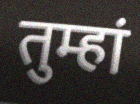
तुम्हां